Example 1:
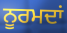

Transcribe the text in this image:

ਨੂਰਮਦਾਂ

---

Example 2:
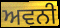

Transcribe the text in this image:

ਅਵਨੀ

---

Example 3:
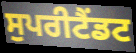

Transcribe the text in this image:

ਸੁਪਰੀਟੈਂਡਟ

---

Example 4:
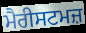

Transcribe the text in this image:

ਮੈਰੀਸਟਮਜ਼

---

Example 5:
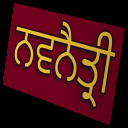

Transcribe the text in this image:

ਨਵਨੈਤ੍ਰੀ